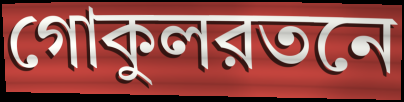
গোকুলরতনে